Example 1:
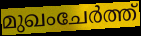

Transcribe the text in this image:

മുഖംചേർത്ത്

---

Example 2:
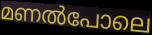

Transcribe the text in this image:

മണൽപോലെ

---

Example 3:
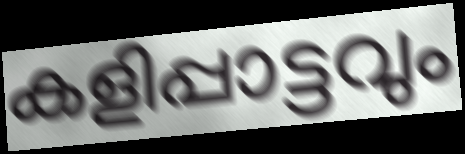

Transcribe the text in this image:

കളിപ്പാട്ടവും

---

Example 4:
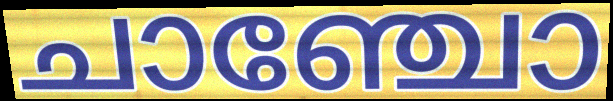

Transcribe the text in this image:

ചാഞ്ചോ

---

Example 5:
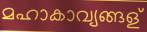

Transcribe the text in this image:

മഹാകാവ്യങ്ങള്